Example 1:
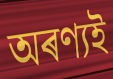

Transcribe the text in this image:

অৰণ্যই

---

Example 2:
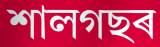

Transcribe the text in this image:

শালগছৰ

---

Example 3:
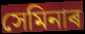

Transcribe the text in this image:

সেমিনাৰ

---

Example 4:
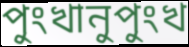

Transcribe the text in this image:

পুংখানুপুংখ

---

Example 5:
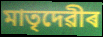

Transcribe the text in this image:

মাতৃদেৱীৰ